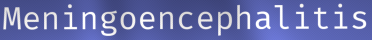
Meningoencephalitis